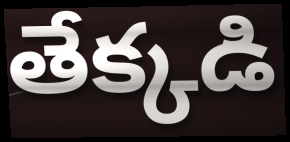
తేక్కడి